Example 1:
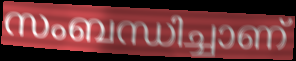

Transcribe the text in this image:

സംബന്ധിച്ചാണ്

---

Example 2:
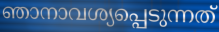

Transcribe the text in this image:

ഞാനാവശ്യപ്പെടുന്നത്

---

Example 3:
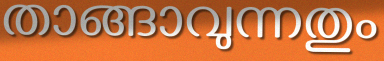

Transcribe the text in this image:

താങ്ങാവുന്നതും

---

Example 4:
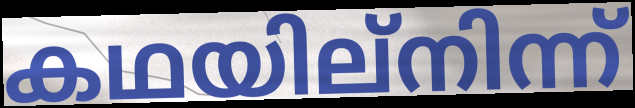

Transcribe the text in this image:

കഥയില്നിന്ന്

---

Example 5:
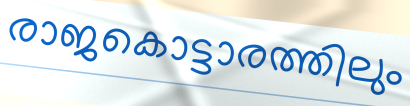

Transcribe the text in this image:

രാജകൊട്ടാരത്തിലും